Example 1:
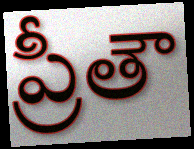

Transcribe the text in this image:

ప్రీతౌ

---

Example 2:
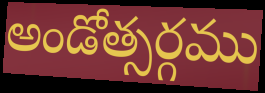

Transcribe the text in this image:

అండోత్సర్గము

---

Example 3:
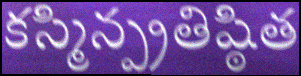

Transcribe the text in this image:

కస్మిన్ప్రతిష్ఠిత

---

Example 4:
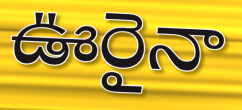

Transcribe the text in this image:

ఊరైనా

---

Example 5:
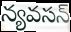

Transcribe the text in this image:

న్యవసన్